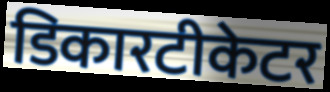
डिकारटीकेटर